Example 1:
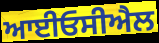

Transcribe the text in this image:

ਆਈਓਸੀਐਲ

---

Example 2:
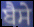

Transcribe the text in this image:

ਬੈਸੇ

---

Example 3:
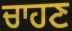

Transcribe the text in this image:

ਚਾਹਣ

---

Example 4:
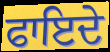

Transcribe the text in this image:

ਫਾਇਦੇ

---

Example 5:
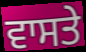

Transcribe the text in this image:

ਵਾਸਤੇ